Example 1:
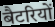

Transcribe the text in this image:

बैटरियों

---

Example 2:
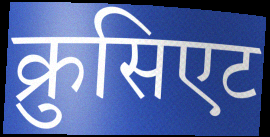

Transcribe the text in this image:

क्रुसिएट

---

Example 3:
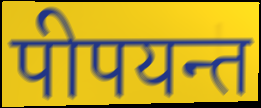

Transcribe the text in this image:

पीपयन्त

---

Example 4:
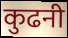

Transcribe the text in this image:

कुढनी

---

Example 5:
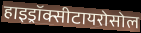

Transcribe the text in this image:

हाइड्रॉक्सीटायरोसोल